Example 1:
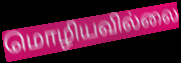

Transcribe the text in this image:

மொழியவில்லை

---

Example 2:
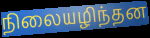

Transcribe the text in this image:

நிலையழிந்தன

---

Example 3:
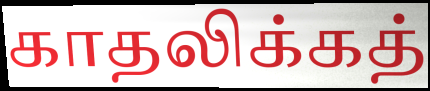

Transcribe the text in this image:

காதலிக்கத்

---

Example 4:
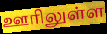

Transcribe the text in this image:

ஊரிலுள்ள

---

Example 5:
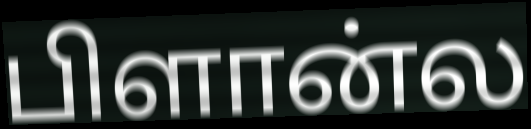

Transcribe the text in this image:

பிளான்ல